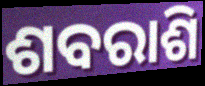
ଶବରାଶି